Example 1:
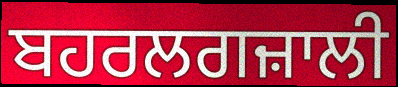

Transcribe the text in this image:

ਬਹਰਲਗਜ਼ਾਲੀ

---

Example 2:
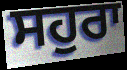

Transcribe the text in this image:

ਸਹੁਰਾ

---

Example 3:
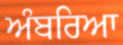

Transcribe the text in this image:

ਅੰਬਰਿਆ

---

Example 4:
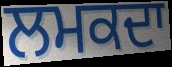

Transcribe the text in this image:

ਲਮਕਦਾ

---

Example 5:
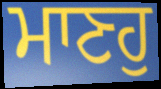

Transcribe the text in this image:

ਮਾਣਹੁ